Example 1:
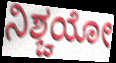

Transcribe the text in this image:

ನಿಶ್ಚಯೋ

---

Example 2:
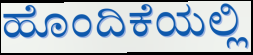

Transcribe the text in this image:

ಹೊಂದಿಕೆಯಲ್ಲಿ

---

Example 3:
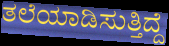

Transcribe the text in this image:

ತಲೆಯಾಡಿಸುತ್ತಿದ್ದೆ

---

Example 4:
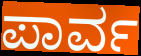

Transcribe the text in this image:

ಪಾರ್ವ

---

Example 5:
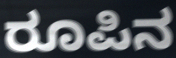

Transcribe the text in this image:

ರೂಪಿನ